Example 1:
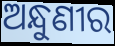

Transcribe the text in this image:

ଅନ୍ଧୁଣୀର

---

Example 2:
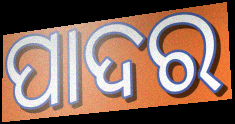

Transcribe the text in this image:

ପାଦର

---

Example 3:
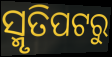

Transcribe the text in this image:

ସ୍ମୃତିପଟରୁ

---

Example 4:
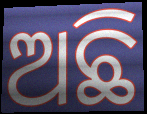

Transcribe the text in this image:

ଅଛି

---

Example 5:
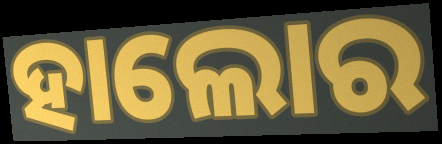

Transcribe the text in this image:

ହାଲୋର